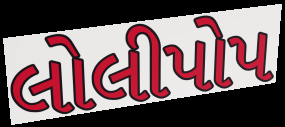
લોલીપોપ